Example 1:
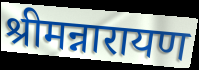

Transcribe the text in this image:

श्रीमन्नारायण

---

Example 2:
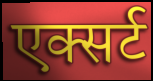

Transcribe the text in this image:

एक्सर्ट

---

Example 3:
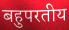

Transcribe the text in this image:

बहुपरतीय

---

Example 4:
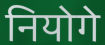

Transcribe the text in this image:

नियोगे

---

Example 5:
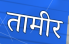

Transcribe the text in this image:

तामीर